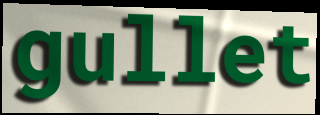
gullet